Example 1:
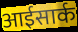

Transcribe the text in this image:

आईसार्क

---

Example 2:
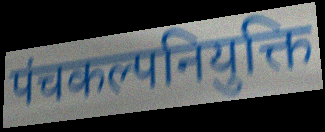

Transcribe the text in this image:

पंचकल्पनियुक्ति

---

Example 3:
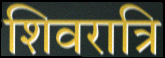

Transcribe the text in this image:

शिवरात्रि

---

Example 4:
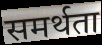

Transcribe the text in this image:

समर्थता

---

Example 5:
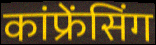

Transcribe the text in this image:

कांफ्रेंसिंग